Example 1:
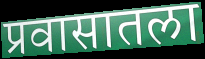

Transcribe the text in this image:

प्रवासातला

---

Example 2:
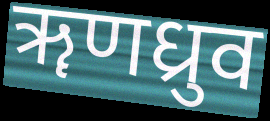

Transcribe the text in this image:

ॠणध्रुव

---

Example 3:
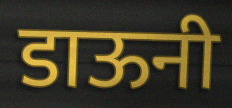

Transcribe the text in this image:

डाऊनी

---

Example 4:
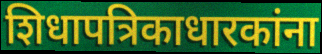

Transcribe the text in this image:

शिधापत्रिकाधारकांना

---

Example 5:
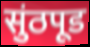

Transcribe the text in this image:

सुंठपूड